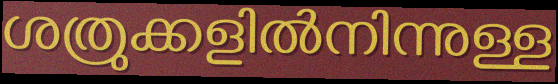
ശത്രുക്കളിൽനിന്നുള്ള